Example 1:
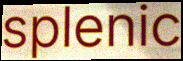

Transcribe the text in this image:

splenic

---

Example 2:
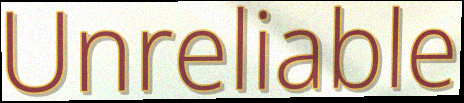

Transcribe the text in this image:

Unreliable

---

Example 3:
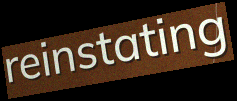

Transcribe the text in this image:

reinstating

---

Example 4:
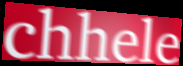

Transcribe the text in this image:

chhele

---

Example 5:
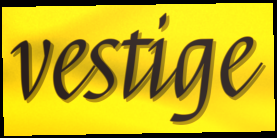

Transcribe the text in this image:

vestige